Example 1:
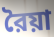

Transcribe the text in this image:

রৈয়া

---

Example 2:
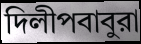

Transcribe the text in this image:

দিলীপবাবুরা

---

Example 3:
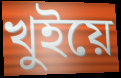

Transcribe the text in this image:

খুইয়ে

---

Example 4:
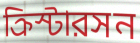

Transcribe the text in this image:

ক্রিস্টারসন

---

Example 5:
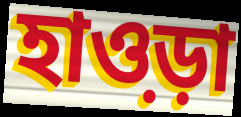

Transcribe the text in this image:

হাও়ড়া